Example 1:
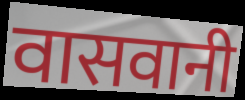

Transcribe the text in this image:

वासवानी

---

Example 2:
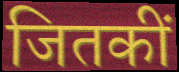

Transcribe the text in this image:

जितकीं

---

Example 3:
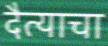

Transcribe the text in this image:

दैत्याचा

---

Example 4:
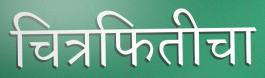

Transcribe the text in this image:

चित्रफितीचा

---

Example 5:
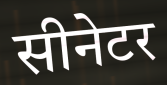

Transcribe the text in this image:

सीनेटर